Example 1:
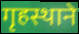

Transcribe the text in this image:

गृहस्थाने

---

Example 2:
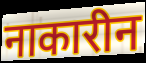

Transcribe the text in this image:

नाकारीन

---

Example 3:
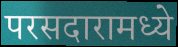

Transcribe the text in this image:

परसदारामध्ये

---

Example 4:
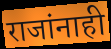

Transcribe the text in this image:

राजांनाही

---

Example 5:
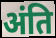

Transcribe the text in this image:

अंति